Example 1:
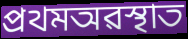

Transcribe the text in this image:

প্ৰথমঅৱস্থাত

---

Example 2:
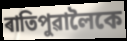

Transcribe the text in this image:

ৰাতিপুৱালৈকে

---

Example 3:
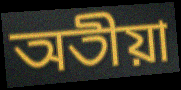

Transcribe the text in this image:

অতীয়া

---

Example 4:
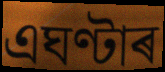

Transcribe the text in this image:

এঘণ্টাৰ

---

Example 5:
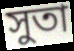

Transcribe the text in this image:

সুতা